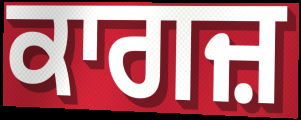
ਕਾਗਜ਼